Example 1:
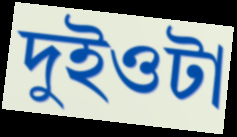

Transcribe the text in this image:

দুইওটা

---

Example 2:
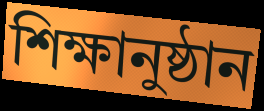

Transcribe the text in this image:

শিক্ষানুষ্ঠান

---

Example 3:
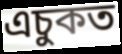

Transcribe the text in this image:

এচুকত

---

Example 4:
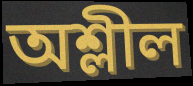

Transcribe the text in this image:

অশ্লীল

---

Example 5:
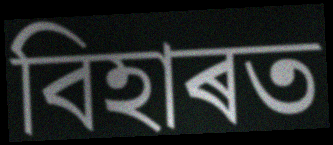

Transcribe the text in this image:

বিহাৰত